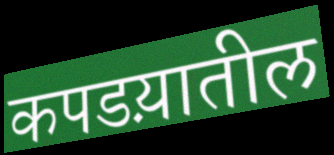
कपडय़ातील